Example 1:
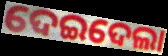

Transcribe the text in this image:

ଦେଇଦେଲା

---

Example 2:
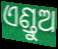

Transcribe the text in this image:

ଏଣ୍ଡୁଅ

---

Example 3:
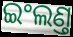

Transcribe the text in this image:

ଇଂଲଣ୍ତ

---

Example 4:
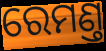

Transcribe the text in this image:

ରେମଣ୍ତ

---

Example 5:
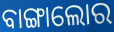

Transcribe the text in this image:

ବାଙ୍ଗାଲୋର